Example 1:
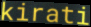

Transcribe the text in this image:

kirati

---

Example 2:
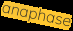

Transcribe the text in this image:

anaphase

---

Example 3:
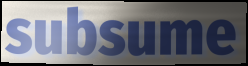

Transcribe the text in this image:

subsume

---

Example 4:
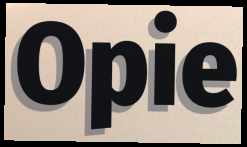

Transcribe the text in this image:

Opie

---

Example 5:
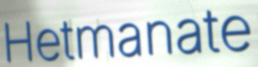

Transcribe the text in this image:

Hetmanate